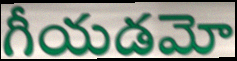
గీయడమో